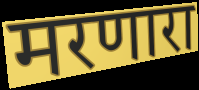
मरणारा